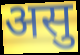
असु